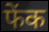
फेंक